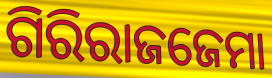
ଗିରିରାଜଜେମା